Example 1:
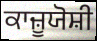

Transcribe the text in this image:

ਕਾਜ਼ੂਯੋਸ਼ੀ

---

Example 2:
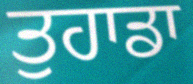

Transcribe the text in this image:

ਤੁਹਾਡਾ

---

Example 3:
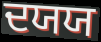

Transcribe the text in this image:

ਦਯਯ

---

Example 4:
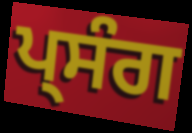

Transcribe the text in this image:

ਪ੍ਸੰਗ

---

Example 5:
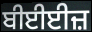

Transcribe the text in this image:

ਬੀਈਈਜ਼